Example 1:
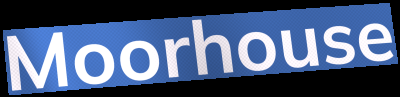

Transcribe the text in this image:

Moorhouse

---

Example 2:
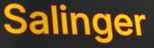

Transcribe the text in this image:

Salinger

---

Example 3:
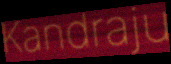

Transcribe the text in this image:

Kandraju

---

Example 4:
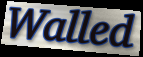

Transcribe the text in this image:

Walled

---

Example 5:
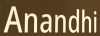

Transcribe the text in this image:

Anandhi